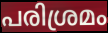
പരിശ്രമം